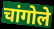
चांगोले